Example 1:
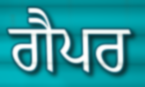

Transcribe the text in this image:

ਗੈਪਰ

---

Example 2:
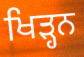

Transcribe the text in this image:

ਖਿੜ੍ਹਨ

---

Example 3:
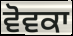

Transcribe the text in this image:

ਵੋਵਕਾ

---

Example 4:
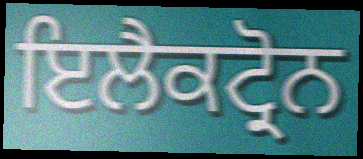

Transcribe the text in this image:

ਇਲੈਕਟ੍ਰੋਨ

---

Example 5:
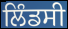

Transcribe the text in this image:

ਲਿੰਡਸੀ